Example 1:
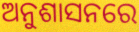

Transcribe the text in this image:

ଅନୁଶାସନରେ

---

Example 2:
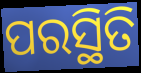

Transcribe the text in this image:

ପରସ୍ଥିତି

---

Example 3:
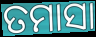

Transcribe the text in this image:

ତମାସା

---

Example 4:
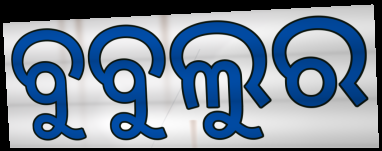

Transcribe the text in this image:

ବୁବୁଲୁର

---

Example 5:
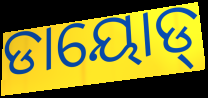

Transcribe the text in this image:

ଡାୟୋଡ୍